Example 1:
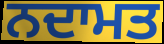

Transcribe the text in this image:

ਨਦਾਮਤ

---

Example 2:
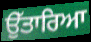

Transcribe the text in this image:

ਉੱਤਾਰਿਆ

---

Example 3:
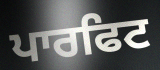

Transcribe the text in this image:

ਪਾਰਫਿਟ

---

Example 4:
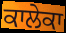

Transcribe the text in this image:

ਕਾਲੇਕਾ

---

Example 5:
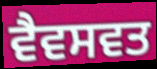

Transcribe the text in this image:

ਵੈਵਸਵਤ